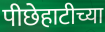
पीछेहाटीच्या